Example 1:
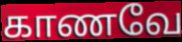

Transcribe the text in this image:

காணவே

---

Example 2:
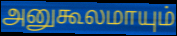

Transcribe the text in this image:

அனுகூலமாயும்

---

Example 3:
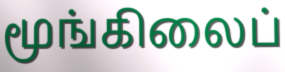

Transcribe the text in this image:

மூங்கிலைப்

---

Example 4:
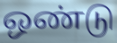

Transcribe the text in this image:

ஒண்டு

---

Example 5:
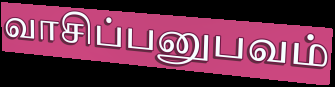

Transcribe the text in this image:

வாசிப்பனுபவம்